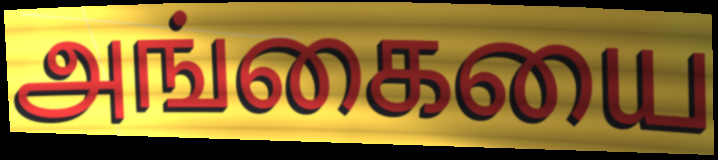
அங்கையை